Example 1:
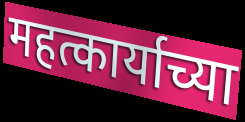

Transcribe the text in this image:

महत्कार्याच्या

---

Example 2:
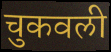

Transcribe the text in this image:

चुकवली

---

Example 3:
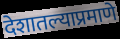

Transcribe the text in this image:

देशातल्याप्रमाणे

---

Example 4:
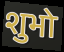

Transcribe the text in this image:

शुभो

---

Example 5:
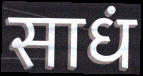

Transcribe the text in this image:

साधं